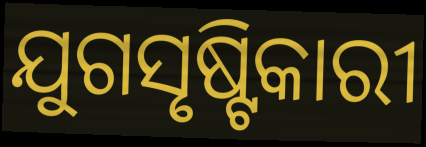
ଯୁଗସୃଷ୍ଟିକାରୀ